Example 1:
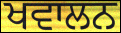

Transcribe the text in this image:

ਖਵਾਲਨ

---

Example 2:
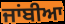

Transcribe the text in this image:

ਜਾਂਬੀਆ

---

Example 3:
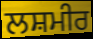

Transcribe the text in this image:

ਲਸ਼ਮੀਰ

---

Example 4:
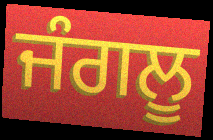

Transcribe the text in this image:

ਜੰਗਲੂ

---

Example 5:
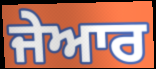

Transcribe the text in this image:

ਜੇਆਰ